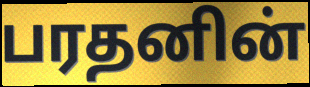
பரதனின்